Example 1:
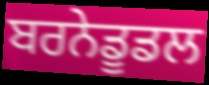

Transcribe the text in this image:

ਬਰਨੇਡੂਡਲ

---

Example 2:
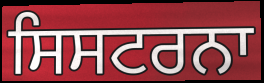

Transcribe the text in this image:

ਸਿਸਟਰਨਾ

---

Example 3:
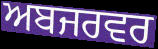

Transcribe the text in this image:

ਅਬਜਰਵਰ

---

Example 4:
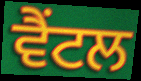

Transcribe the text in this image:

ਵੈਂਟਲ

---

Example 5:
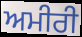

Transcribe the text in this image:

ਅਮੀਰੀ